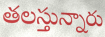
తలస్తున్నారు